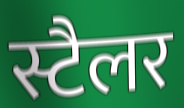
स्टैलर